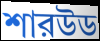
শারউড